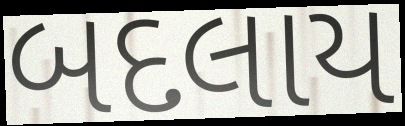
બદલાય